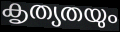
കൃത്യതയും